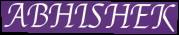
ABHISHEK